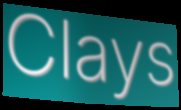
Clays